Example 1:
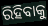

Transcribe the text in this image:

ରିହିବାକୁ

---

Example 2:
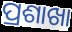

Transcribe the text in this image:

ପ୍ରଶାଖା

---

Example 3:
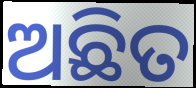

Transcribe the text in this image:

ଅଛିତ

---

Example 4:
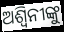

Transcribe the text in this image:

ଅଶ୍ୱିନୀଙ୍କୁ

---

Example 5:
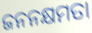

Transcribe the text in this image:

ଜନନକ୍ଷମତା